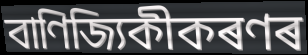
বাণিজ্যিকীকৰণৰ